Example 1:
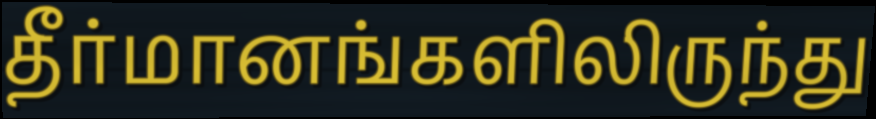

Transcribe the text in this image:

தீர்மானங்களிலிருந்து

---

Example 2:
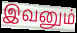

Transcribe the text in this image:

இவனும்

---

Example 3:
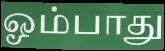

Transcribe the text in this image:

ஓம்பாது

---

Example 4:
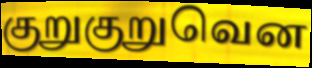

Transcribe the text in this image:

குறுகுறுவென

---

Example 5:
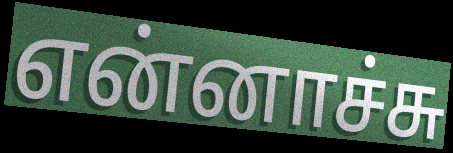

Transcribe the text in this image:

என்னாச்சு